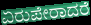
ಏರುಪೇರಾದರೆ